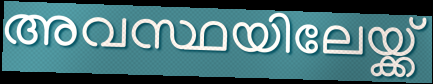
അവസ്ഥയിലേയ്ക്ക്